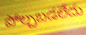
పోల్చబడలేదు